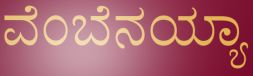
ವೆಂಬೆನಯ್ಯಾ